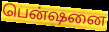
பென்ஷனை